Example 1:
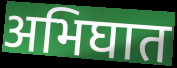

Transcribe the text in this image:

अभिघात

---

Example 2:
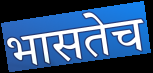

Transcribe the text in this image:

भासतेच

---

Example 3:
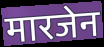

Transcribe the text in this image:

मारजेन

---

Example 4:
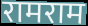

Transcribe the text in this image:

रामराम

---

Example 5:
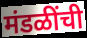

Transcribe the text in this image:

मंडळींची